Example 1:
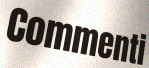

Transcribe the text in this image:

Commenti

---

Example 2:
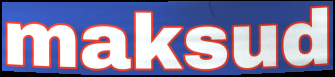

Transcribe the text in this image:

maksud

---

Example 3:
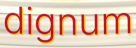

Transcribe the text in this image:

dignum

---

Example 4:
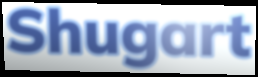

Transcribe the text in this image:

Shugart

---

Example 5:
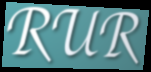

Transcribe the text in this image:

RUR